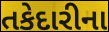
તકેદારીના